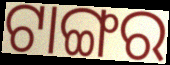
ଟାଙ୍ଗର